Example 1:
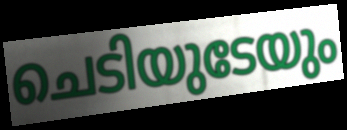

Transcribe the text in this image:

ചെടിയുടേയും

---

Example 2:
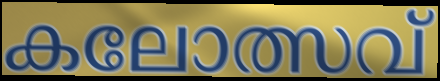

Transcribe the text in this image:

കലോത്സവ്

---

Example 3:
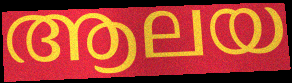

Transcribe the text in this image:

ആലയ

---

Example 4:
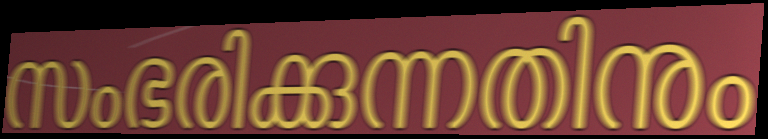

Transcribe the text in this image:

സംഭരിക്കുന്നതിനും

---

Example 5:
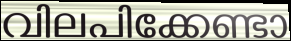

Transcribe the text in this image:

വിലപിക്കേണ്ടാ